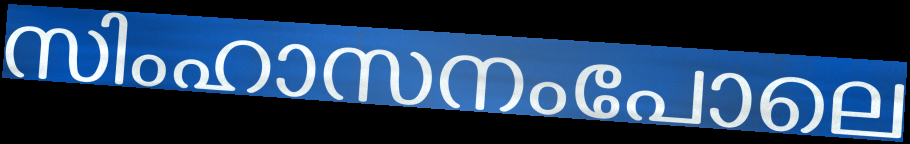
സിംഹാസനംപോലെ